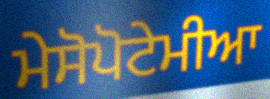
ਮੇਸੋਪੋਟੇਮੀਆ